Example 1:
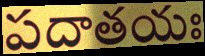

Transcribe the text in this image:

పదాతయః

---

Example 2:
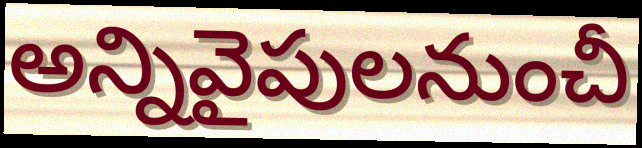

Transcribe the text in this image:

అన్నివైపులనుంచీ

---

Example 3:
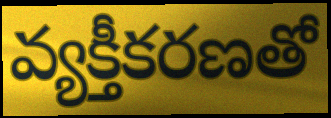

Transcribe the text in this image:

వ్యక్తీకరణతో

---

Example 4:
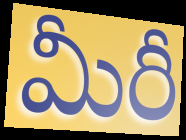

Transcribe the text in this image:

మీరీ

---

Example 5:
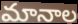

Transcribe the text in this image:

మానాల